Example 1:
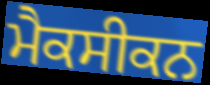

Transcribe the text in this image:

ਮੈਕਸੀਕਨ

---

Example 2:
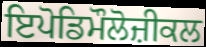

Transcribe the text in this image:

ਇਪੋਡਿਮੌਲੋਜ਼ੀਕਲ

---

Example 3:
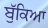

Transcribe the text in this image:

ਬੁੱਕਿਆ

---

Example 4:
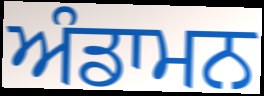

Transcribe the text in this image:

ਅੰਡਾਮਨ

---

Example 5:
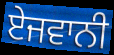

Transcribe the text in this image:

ਏਜਵਾਨੀ